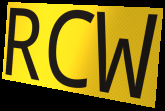
RCW